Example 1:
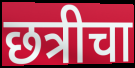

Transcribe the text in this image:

छत्रीचा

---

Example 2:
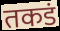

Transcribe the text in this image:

तकडं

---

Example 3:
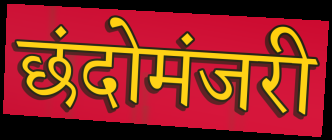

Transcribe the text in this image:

छंदोमंजरी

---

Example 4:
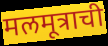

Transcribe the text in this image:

मलमूत्राची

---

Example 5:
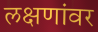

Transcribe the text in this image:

लक्षणांवर